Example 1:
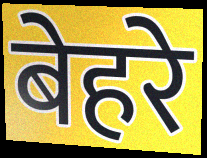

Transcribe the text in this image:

बेहरे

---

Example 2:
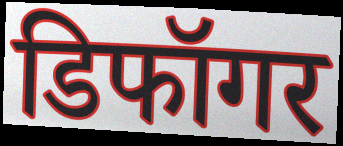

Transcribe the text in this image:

डिफॉगर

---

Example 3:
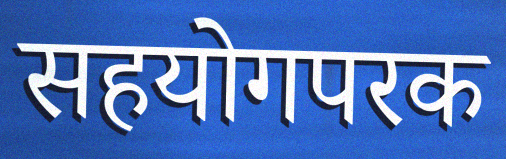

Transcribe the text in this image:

सहयोगपरक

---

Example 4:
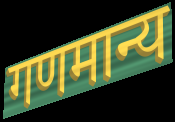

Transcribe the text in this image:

गणमान्‍य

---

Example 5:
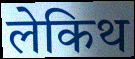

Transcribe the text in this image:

लेकिथ